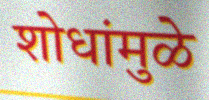
शोधांमुळे